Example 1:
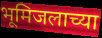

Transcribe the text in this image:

भूमिजलाच्या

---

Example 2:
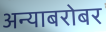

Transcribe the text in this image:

अन्याबरोबर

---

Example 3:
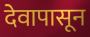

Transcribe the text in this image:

देवापासून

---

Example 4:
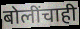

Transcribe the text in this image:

बोलींचाही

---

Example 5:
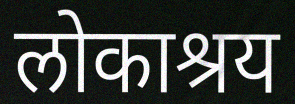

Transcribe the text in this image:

लोकाश्रय